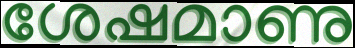
ശേഷമാണു